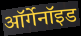
ऑर्गेनॉइड